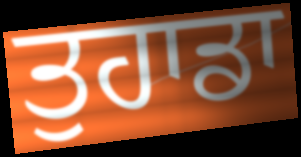
ਤੁਹਾਡਾ